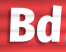
Bd